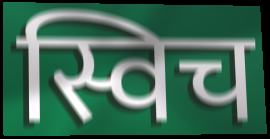
स्विच